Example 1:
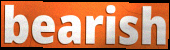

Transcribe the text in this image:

bearish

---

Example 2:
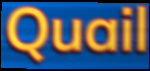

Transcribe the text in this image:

Quail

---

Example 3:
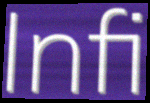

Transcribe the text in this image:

Infi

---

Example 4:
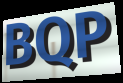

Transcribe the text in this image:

BQP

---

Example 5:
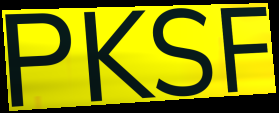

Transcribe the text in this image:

PKSF